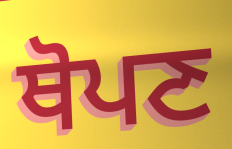
ਥੋਪਣ